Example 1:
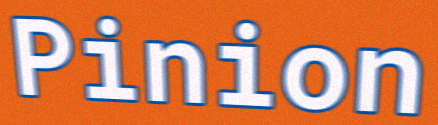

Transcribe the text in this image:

Pinion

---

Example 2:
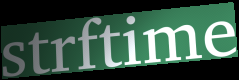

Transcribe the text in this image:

strftime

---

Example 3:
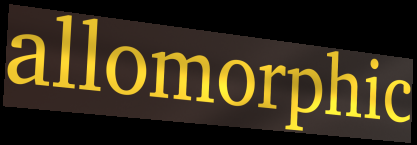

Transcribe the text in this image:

allomorphic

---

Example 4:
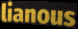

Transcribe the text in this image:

lianous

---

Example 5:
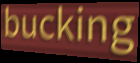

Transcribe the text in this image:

bucking